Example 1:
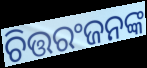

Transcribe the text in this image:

ଚିତ୍ତରଂଜନଙ୍କ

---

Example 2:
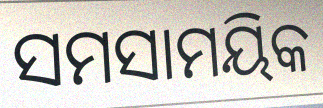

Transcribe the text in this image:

ସମସାମୟିକ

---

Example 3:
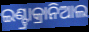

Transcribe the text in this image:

ଇଣ୍ଟ୍ରାକ୍ରାନିଆଲ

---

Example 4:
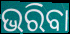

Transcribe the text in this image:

ଭରିବା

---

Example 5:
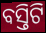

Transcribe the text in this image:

ବସ୍ତିଟି